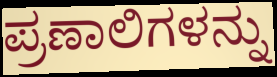
ಪ್ರಣಾಲಿಗಳನ್ನು